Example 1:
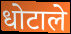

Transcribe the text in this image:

धोटाले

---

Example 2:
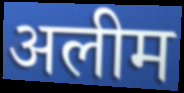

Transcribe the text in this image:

अलीम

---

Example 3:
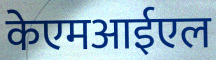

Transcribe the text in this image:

केएमआईएल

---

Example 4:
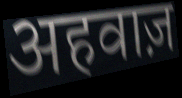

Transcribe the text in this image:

अहवाज़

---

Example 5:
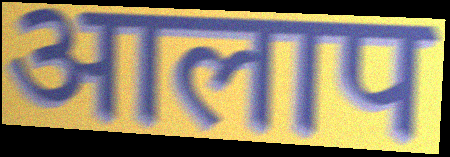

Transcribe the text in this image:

आलाप